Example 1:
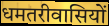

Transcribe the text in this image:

धमतरीवासियों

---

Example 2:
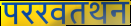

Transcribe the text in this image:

पररवतथन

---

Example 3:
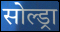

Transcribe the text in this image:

सोल्ड्रा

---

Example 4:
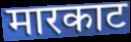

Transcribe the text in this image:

मारकाट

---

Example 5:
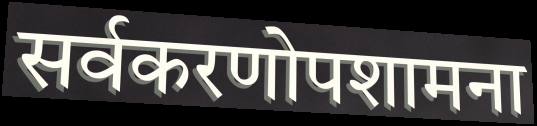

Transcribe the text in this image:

सर्वकरणोपशामना